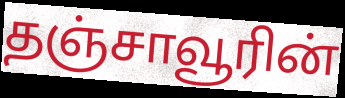
தஞ்சாவூரின்